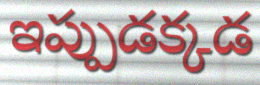
ఇప్పుడక్కడ